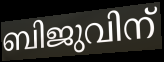
ബിജുവിന്